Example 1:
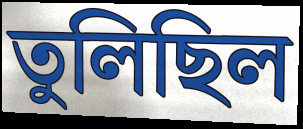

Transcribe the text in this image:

তুলিছিল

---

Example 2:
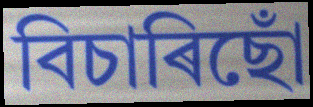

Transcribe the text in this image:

বিচাৰিছোঁ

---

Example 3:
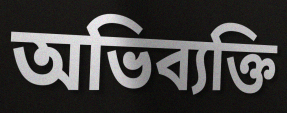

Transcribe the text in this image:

অভিব্যক্তি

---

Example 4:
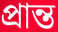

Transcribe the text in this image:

প্ৰান্ত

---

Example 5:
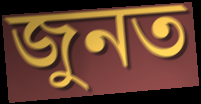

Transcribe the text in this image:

জুনত